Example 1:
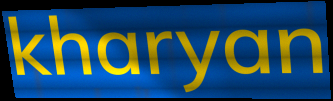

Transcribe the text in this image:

kharyan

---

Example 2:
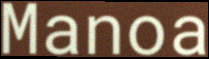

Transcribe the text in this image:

Manoa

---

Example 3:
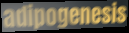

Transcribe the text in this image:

adipogenesis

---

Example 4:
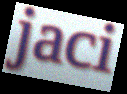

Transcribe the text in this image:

jaci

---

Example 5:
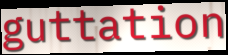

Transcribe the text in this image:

guttation